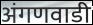
अंगणवाडी